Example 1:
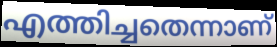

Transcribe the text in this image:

എത്തിച്ചതെന്നാണ്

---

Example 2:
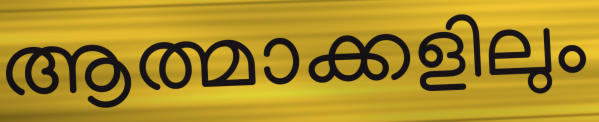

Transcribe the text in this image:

ആത്മാക്കളിലും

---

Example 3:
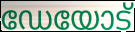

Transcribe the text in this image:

ഡേയോട്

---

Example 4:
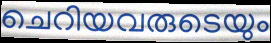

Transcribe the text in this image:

ചെറിയവരുടെയും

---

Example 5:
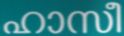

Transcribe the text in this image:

ഹാസീ